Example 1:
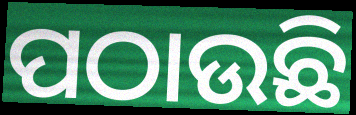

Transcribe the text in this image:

ପଠାଉଛି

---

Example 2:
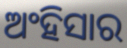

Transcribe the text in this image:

ଅଂହିସାର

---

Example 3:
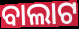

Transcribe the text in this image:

ବାଲାଟ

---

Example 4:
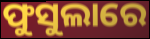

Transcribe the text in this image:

ଫୁସୁଲାରେ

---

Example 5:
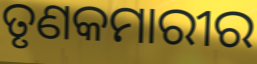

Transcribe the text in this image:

ତୃଣକମାରୀର